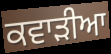
ਕਵਾੜੀਆ